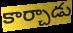
కార్చాడు